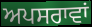
ਅਪਸਰਾਵਾਂ